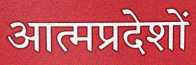
आत्मप्रदेशों